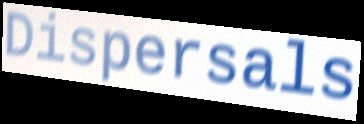
Dispersals